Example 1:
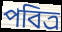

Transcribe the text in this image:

পবিত্র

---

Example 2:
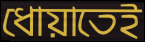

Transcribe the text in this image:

ধোয়াতেই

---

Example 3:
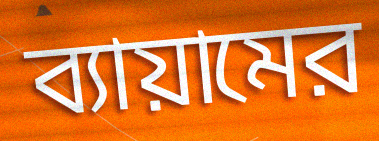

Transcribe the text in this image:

ব্যায়ামের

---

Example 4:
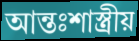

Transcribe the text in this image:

আন্তঃশাস্ত্রীয়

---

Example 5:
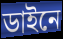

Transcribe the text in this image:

ডাইনে